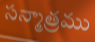
సన్మాత్రము